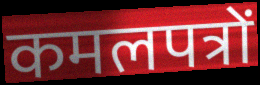
कमलपत्रों